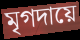
মৃগদায়ে